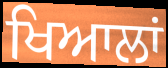
ਖਿਆਲਾਂ